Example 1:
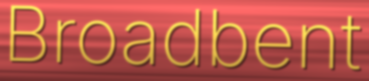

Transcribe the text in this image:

Broadbent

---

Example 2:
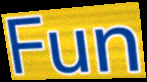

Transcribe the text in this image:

Fun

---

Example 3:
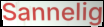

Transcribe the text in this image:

Sannelig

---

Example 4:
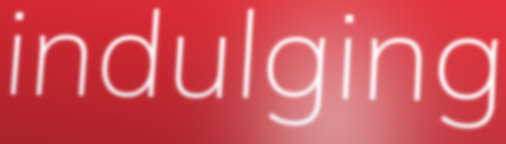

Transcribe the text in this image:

indulging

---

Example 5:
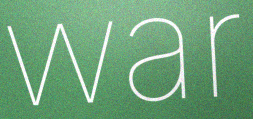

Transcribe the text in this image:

war